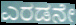
ಎರಡನೇ